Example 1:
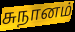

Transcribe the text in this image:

சுநானம்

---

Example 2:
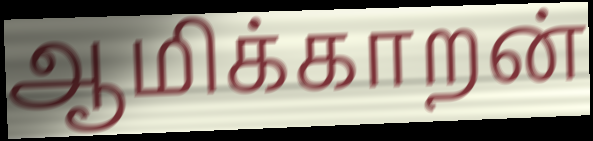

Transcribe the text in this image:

ஆமிக்காறன்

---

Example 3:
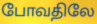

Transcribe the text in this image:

போவதிலே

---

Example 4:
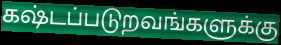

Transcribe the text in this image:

கஷ்டப்படுறவங்களுக்கு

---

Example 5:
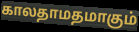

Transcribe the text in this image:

காலதாமதமாகும்